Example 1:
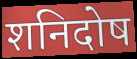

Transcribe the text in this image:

शनिदोष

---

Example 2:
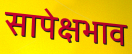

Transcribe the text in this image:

सापेक्षभाव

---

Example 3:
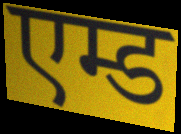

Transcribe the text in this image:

एम्ड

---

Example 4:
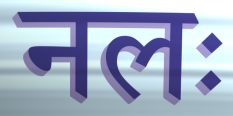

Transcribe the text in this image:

नलः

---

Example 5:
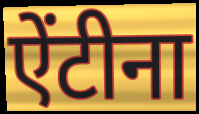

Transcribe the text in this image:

ऐंटीना